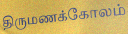
திருமணக்கோலம்